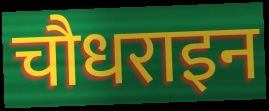
चौधराइन